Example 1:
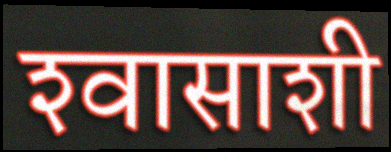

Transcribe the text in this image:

श्वासाशी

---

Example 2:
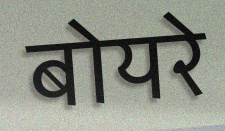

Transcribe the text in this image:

बोयरे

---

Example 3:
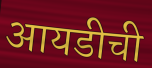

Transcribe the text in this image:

आयडीची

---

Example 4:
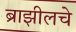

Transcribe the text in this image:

ब्राझीलचे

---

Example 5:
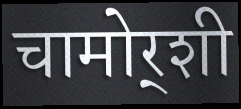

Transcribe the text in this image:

चामोर्शी